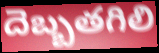
దెబ్బతగిలి